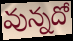
వున్నదో